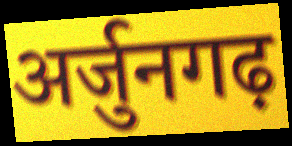
अर्जुनगढ़